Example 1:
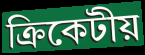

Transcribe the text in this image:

ক্রিকেটীয়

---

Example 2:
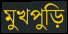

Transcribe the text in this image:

মুখপুড়ি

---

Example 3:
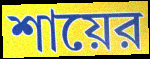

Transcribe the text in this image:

শায়ের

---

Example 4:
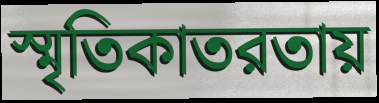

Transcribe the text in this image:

স্মৃতিকাতরতায়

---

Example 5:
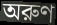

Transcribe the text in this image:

অরুণ